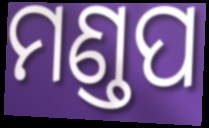
ମଣ୍ଡପ